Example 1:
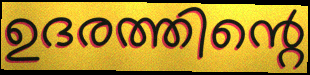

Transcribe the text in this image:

ഉദരത്തിന്റെ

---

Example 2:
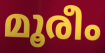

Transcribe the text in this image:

മൂരീം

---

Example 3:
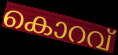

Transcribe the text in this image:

കൊറവ്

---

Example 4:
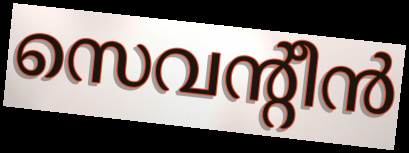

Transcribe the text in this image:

സെവന്റീൻ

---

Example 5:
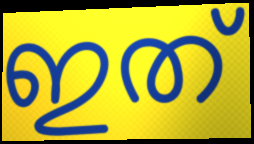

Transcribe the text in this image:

ഇത്